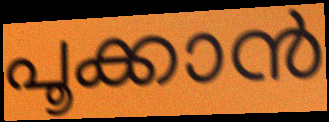
പൂക്കാൻ